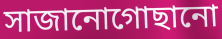
সাজানোগোছানো